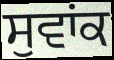
ਸੁਵਾਂਕ